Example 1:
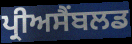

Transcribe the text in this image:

ਪ੍ਰੀਅਸੈਂਬਲਡ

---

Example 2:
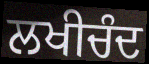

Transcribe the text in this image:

ਲਖੀਚੰਦ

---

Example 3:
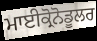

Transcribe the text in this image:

ਮਾਈਕ੍ਰੋਨੋਡੂਲਰ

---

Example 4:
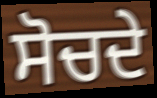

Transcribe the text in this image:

ਸੋਚਦੇ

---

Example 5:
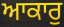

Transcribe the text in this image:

ਆਕਾਰੁ